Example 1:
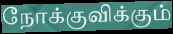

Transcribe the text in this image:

நோக்குவிக்கும்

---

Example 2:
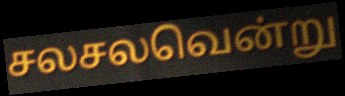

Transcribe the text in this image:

சலசலவென்று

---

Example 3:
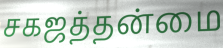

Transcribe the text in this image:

சகஜத்தன்மை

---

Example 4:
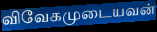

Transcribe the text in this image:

விவேகமுடையவன்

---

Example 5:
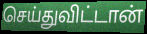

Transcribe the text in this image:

செய்துவிட்டான்